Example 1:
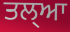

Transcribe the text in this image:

ਤਲ੍ਆ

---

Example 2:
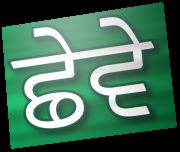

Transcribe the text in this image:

ਛੇਵੇ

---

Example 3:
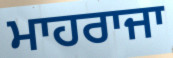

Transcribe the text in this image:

ਮਾਹਰਾਜਾ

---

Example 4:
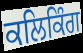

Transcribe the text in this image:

ਕਲਿਕਿੰਗ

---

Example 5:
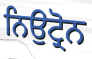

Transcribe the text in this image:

ਨਿਉਟ੍ਰੋਨ